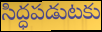
సిద్ధపడుటకు